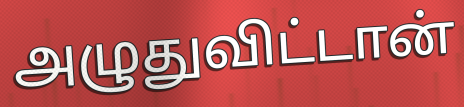
அழுதுவிட்டான்